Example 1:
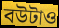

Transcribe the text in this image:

বউটাও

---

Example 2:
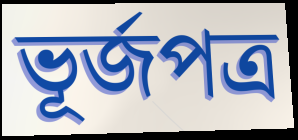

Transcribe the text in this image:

ভূর্জপত্র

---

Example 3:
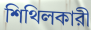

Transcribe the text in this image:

শিথিলকারী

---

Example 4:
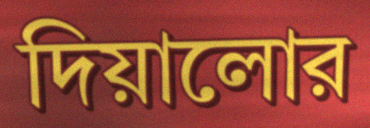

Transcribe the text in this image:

দিয়ালোর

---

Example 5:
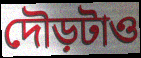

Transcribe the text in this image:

দৌড়টাও